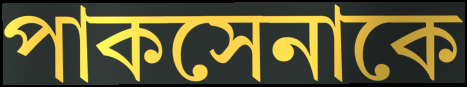
পাকসেনাকে